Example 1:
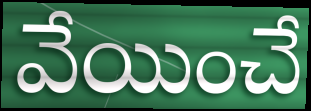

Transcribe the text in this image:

వేయించే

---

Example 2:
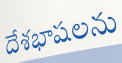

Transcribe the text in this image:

దేశభాషలను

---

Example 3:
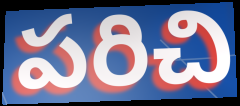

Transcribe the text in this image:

పరిచి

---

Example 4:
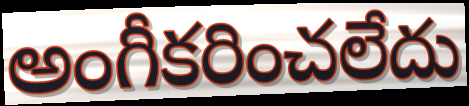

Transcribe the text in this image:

అంగీకరించలేదు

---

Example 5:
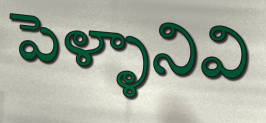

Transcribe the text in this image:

పెళ్ళానివి